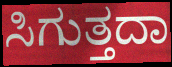
ಸಿಗುತ್ತದಾ